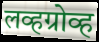
लव्हग्रोव्ह